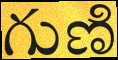
గుణి